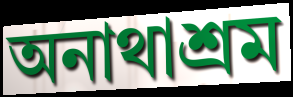
অনাথাশ্রম